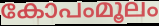
കോപംമൂലം